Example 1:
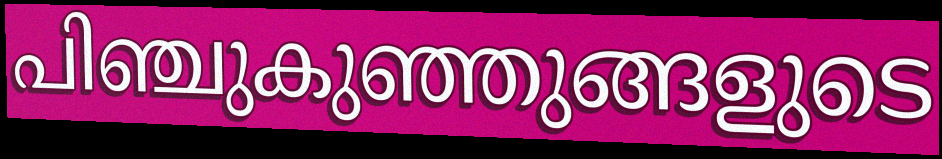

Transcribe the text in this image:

പിഞ്ചുകുഞ്ഞുങ്ങളുടെ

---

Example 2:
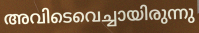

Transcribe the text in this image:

അവിടെവെച്ചായിരുന്നു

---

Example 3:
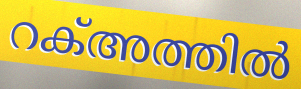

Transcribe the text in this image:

റക്അത്തിൽ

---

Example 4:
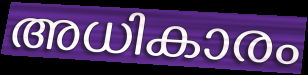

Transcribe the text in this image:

അധികാരം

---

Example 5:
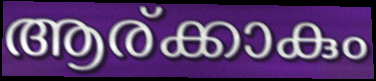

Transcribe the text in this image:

ആര്ക്കാകും